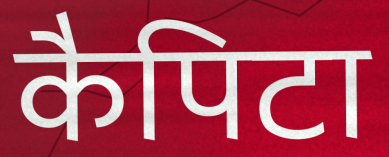
कैपिटा